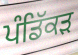
ਪੰਡਿੱਕੜ